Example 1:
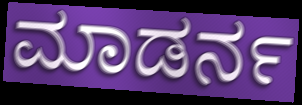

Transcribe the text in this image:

ಮಾಡರ್ನ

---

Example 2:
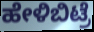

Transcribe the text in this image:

ಹೇಳಿಬಿಟ್ರೆ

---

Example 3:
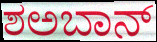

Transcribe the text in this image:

ಶಅಬಾನ್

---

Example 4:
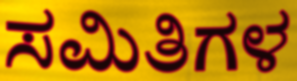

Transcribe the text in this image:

ಸಮಿತಿಗಳ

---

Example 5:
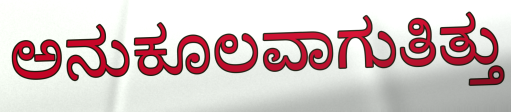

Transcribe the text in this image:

ಅನುಕೂಲವಾಗುತಿತ್ತು